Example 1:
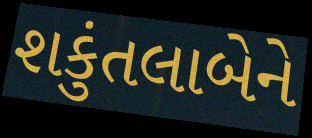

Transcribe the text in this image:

શકુંતલાબેને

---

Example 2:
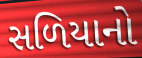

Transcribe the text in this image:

સળિયાનો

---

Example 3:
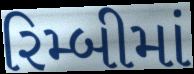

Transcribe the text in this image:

રિમ્બીમાં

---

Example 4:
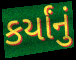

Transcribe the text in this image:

કર્યાંનું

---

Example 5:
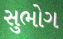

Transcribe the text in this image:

સુભોગ